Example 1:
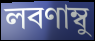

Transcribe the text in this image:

লবণাম্বু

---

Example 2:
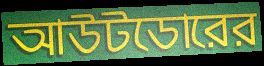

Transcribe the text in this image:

আউটডোরের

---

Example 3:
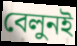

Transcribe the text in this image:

বেলুনই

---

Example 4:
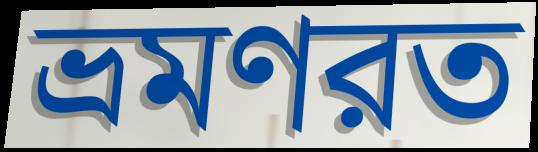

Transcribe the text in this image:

ভ্রমণরত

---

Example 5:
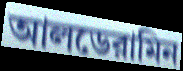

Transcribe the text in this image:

আলডেরামিন